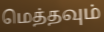
மெத்தவும்